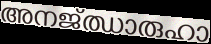
അനജ്ഝാരുഹാ